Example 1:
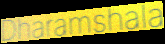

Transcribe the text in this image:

Dharamshala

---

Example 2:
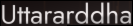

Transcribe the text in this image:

Uttararddha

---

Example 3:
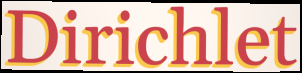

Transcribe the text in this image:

Dirichlet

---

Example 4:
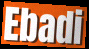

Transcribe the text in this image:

Ebadi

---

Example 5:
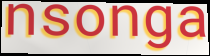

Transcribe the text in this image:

nsonga